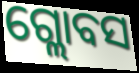
ଗ୍ଲୋବସ